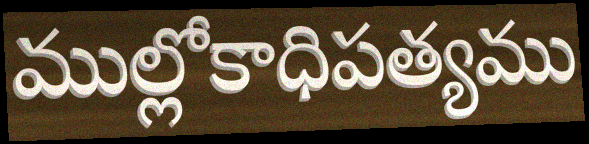
ముల్లోకాధిపత్యము